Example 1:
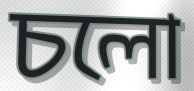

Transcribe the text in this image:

চলো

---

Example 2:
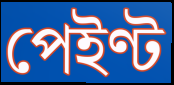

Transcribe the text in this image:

পেইণ্ট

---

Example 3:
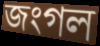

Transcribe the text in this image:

জংগল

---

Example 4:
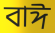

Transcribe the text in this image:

বাঈ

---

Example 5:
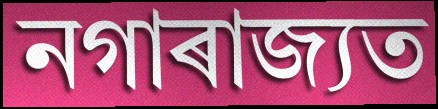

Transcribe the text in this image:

নগাৰাজ্যত